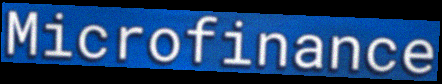
Microfinance